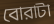
বোরাটা